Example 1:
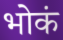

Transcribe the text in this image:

भोकं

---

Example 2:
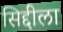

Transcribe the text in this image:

सिद्दीला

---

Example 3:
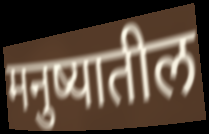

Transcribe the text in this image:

मनुष्यातील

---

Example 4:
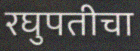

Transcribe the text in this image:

रघुपतीचा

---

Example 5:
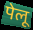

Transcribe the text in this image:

पेलू